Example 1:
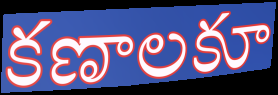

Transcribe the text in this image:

కణాలకూ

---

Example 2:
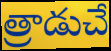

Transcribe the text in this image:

త్రాడుచే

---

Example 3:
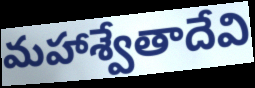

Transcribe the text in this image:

మహాశ్వేతాదేవి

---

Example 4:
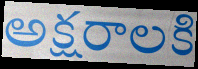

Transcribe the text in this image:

అక్షరాలకి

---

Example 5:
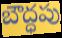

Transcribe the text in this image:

బౌద్ధపు